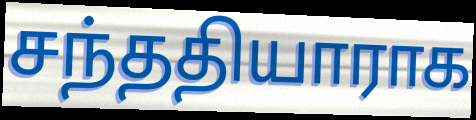
சந்ததியாராக